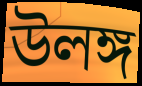
উলঙ্গ